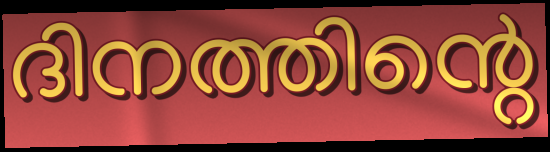
ദിനത്തിന്റെ